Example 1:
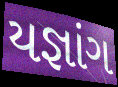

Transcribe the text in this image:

યજ્ઞાંગ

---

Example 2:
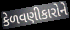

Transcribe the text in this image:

કેળવણીકારોને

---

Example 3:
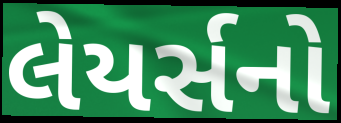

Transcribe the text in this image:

લેયર્સનો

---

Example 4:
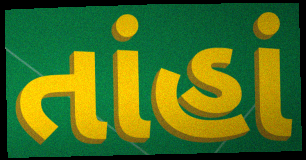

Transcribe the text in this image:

તાંહાં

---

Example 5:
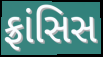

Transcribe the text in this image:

ફ્રાંસિસ